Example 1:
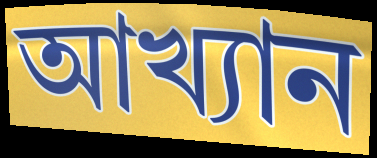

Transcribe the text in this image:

আখ্যান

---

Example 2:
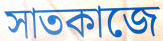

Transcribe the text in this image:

সাতকাজে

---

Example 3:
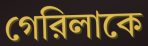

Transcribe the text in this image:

গেরিলাকে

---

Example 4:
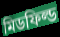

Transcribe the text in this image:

মিডফিল্ড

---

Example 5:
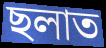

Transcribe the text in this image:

ছলাত